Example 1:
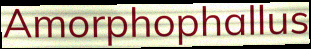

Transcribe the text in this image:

Amorphophallus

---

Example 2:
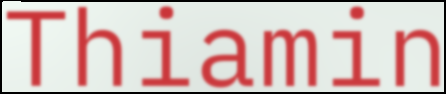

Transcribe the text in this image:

Thiamin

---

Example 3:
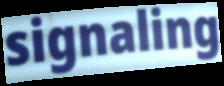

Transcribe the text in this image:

signaling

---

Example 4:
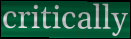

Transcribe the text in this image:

critically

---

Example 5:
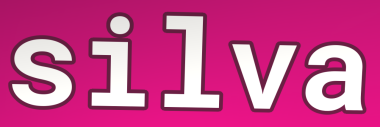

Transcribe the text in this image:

silva